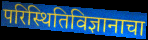
परिस्थितिविज्ञानाचा